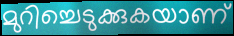
മുറിച്ചെടുക്കുകയാണ്